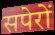
सपेरों